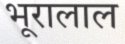
भूरालाल